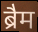
ब्रैम